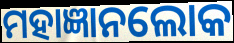
ମହାଜ୍ଞାନଲୋକ